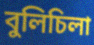
বুলিচিলা